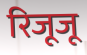
रिजूजू